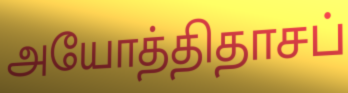
அயோத்திதாசப்